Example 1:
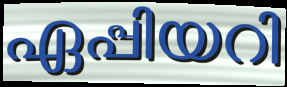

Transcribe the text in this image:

ഏപ്പിയറി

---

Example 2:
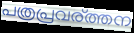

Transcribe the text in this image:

പത്രപ്രവര്ത്തന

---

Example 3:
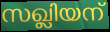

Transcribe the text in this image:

സഖ്ലിയന്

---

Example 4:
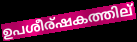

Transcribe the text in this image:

ഉപശീര്ഷകത്തില്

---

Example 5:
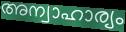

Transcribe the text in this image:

അന്വാഹാര്യം